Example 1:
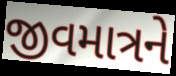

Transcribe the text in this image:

જીવમાત્રને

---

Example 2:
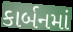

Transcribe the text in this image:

કાર્બનમાં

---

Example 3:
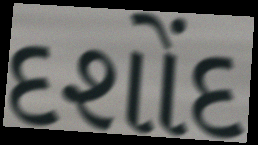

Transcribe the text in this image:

દશોંદ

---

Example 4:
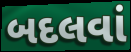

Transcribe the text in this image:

બદલવાં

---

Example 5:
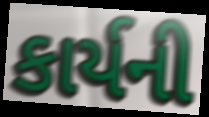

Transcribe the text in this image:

કાર્યની